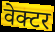
वेक्टर